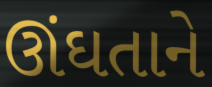
ઊંઘતાને